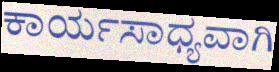
ಕಾರ್ಯಸಾಧ್ಯವಾಗಿ